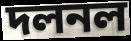
দলনল